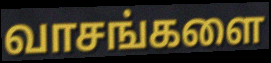
வாசங்களை